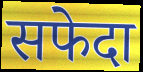
सफेदा